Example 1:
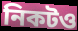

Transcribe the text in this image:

নিকটও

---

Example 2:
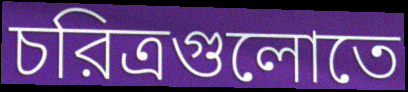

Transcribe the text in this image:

চরিত্রগুলোতে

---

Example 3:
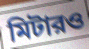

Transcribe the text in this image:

মিটারও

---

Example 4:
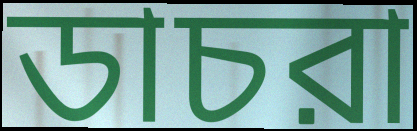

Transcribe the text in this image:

ডাচরা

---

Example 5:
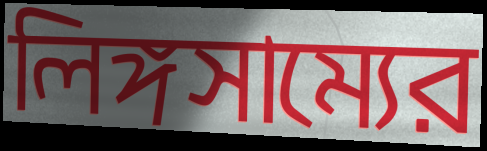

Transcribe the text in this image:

লিঙ্গসাম্যের